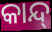
କାନ୍ଦ୍